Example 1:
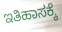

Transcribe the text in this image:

ಇತಿಹಾಸಕ್ಕೆ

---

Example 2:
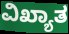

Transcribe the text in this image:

ವಿಖ್ಯಾತ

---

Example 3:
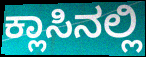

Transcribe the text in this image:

ಕ್ಲಾಸಿನಲ್ಲಿ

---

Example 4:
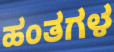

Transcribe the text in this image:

ಹಂತಗಳ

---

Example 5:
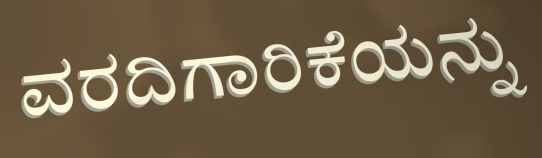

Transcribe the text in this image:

ವರದಿಗಾರಿಕೆಯನ್ನು